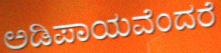
ಅಡಿಪಾಯವೆಂದರೆ